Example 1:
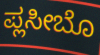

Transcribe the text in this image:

ಪ್ಲಸೀಬೊ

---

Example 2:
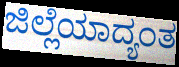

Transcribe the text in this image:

ಜಿಲ್ಲೆಯಾದ್ಯಂತ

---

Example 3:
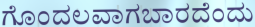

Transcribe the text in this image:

ಗೊಂದಲವಾಗಬಾರದೆಂದು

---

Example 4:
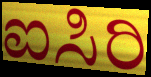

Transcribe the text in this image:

ಐಸಿರಿ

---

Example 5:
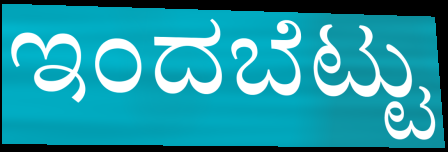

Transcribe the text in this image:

ಇಂದಬೆಟ್ಟು